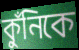
কুঁনিকে